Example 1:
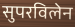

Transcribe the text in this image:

सुपरविलेन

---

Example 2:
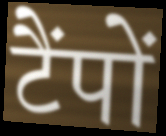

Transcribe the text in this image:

टैंपों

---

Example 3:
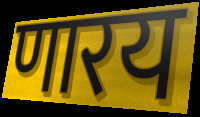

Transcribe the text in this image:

णारय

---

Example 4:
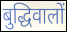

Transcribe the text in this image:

बुद्धिवालों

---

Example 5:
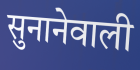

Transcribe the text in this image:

सुनानेवाली